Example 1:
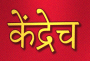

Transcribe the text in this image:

केंद्रेच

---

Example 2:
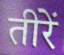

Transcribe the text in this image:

तीरें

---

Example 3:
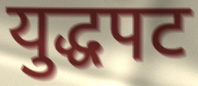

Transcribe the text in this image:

युद्धपट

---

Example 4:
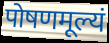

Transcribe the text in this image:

पोषणमूल्यं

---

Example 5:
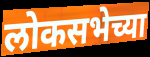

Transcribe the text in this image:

लोकसभेच्या